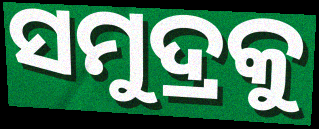
ସମୁଦ୍ରକୁ